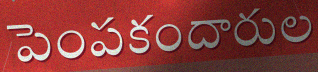
పెంపకందారుల